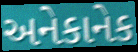
અનેકાનેક